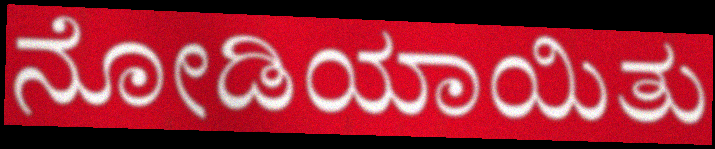
ನೋಡಿಯಾಯಿತು